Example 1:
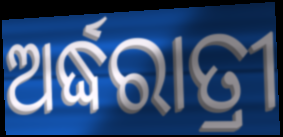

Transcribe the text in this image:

ଅର୍ଦ୍ଧରାତ୍ରୀ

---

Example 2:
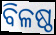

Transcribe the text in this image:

ବିଳଷ୍ଠ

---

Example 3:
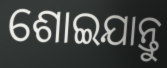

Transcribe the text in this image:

ଶୋଇଯାନ୍ତୁ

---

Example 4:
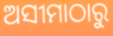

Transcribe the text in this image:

ଅସୀମାଠାରୁ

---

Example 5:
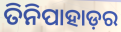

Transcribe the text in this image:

ତିନିପାହାଡ଼ର